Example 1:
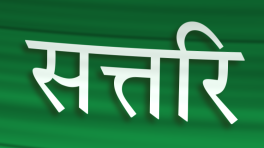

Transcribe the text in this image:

सत्तरि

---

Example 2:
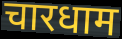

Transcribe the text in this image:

चारधाम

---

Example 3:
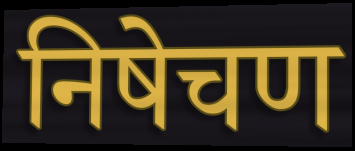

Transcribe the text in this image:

निषेचण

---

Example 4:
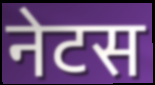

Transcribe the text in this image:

नेटस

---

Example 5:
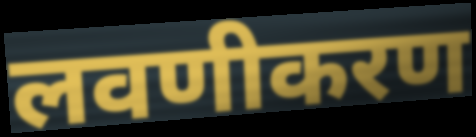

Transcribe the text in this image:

लवणीकरण